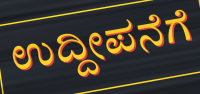
ಉದ್ದೀಪನೆಗೆ